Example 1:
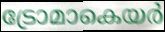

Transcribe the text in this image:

ട്രോമാകെയർ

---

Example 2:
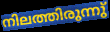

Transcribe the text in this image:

നിലത്തിരുന്നു്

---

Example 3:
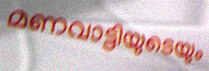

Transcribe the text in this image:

മണവാട്ടിയുടെയും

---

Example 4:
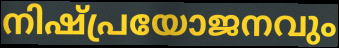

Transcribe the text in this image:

നിഷ്പ്രയോജനവും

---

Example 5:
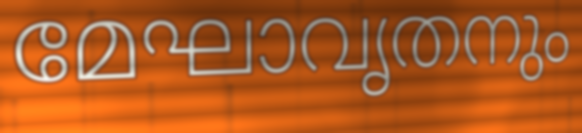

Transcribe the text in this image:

മേഘാവൃതനും